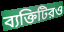
ব্যক্তিটিরও